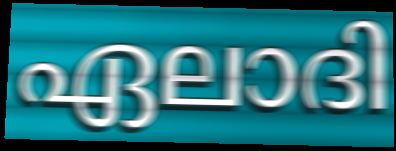
ഏലാദി